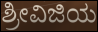
ಶ್ರೀವಿಜಿಯ